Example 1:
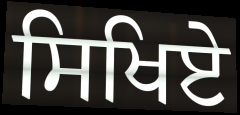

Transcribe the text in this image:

ਸਿਖਿਏ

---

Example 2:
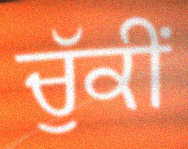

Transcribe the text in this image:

ਚੁੱਕੀਂ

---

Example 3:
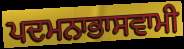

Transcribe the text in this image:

ਪਦਮਨਾਭਾਸਵਾਮੀ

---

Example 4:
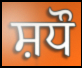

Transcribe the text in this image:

ਸ਼ਧੌ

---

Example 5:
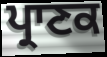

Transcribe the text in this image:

ਪ੍ਰਾਣਕ